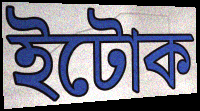
ইটোক